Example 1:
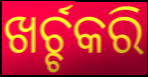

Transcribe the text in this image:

ଖର୍ଚ୍ଚକରି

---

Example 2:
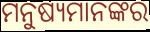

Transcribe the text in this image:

ମନୁଷ୍ଯମାନଙ୍କର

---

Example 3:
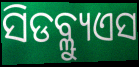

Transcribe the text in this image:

ସିଡବ୍ଲ୍ୟୁଏସ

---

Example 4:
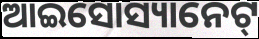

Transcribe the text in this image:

ଆଇସୋସ୍ୟାନେଟ୍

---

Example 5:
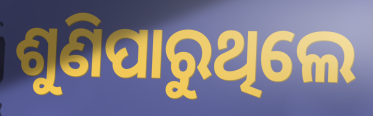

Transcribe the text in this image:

ଶୁଣିପାରୁଥିଲେ